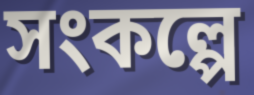
সংকল্পে